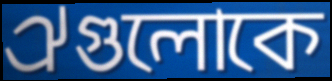
ঐগুলোকে